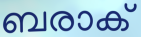
ബരാക്